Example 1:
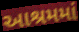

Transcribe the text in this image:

આશ્રમમાં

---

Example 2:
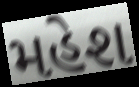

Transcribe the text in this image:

મહેશ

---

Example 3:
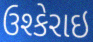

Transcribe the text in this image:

ઉશ્કેરાઇ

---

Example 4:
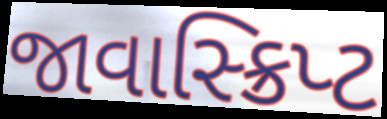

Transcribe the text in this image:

જાવાસ્ક્રિપ્ટ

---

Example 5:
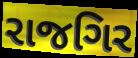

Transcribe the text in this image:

રાજગિર